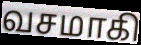
வசமாகி